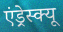
एंड्रेस्क्यू